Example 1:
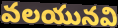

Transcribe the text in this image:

వలయునవి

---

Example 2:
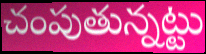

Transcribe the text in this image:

చంపుతున్నట్టు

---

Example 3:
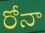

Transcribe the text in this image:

రోనా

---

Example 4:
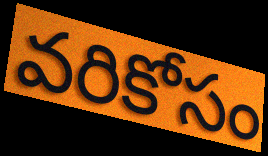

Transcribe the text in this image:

వరికోసం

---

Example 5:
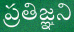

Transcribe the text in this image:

ప్రతిజ్ఞని